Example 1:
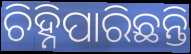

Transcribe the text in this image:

ଚିହ୍ନିପାରିଛନ୍ତି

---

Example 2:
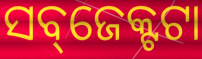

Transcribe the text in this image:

ସବ୍‌ଜେକ୍ଟଟା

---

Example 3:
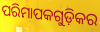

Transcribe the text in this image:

ପରିମାପକଗୁଡ଼ିକର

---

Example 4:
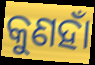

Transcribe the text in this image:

କୁଣହାଁ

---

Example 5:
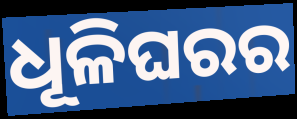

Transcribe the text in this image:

ଧୂଳିଘରର